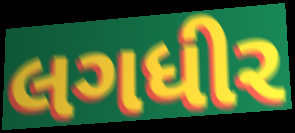
લગધીર